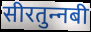
सीरतुन्नबी